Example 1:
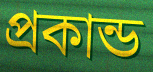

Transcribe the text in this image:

প্রকান্ড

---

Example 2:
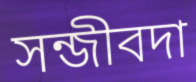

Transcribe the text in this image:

সন্জীবদা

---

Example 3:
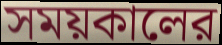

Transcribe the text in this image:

সময়কালের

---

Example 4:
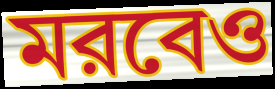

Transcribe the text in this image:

মরবেও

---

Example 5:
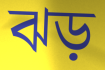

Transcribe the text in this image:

ঝড়